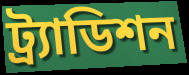
ট্র্যাডিশন